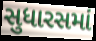
સુધારસમાં